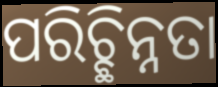
ପରିଚ୍ଛିନ୍ନତା